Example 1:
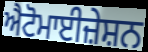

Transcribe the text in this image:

ਐਟੋਮਾਈਜ਼ੇਸ਼ਨ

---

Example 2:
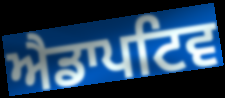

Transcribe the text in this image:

ਐਡਾਪਟਿਵ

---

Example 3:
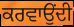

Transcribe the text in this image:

ਕਰਵਾਉਂਦੀ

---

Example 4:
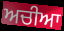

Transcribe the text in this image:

ਅਚੀਆ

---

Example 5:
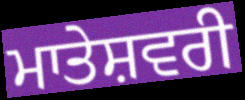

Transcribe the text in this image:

ਮਾਤੇਸ਼ਵਰੀ